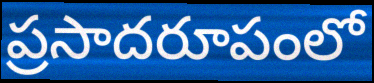
ప్రసాదరూపంలో